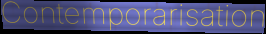
Contemporarisation